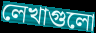
লেখাগুলো